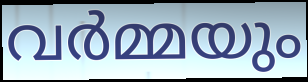
വർമ്മയും